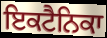
ਇਕਟੈਨਿਕਾ